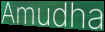
Amudha